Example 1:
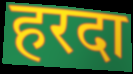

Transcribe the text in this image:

हरदा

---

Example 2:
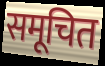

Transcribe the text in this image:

समूचित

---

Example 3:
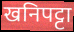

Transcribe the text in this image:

खनिपट्टा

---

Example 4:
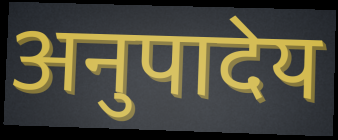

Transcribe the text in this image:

अनुपादेय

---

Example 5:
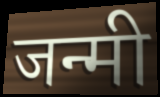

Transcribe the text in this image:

जन्मी